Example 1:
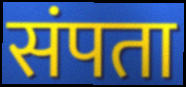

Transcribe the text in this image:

संपता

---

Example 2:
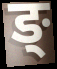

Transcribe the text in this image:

ङ्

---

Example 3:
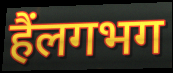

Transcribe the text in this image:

हैंलगभग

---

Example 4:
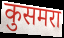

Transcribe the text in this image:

कुसमरा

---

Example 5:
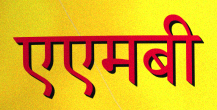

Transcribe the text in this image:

एएमबी